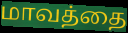
மாவத்தை